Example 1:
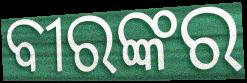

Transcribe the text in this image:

ବୀରଙ୍କର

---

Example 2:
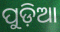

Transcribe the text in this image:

ପୁଡ଼ିଆ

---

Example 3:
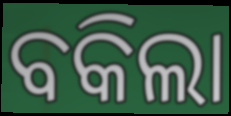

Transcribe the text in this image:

ବକିଲା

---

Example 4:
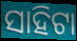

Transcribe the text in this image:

ସାହିଟା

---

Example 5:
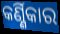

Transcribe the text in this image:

କର୍ଣ୍ଣିକାର